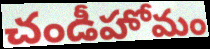
చండీహోమం